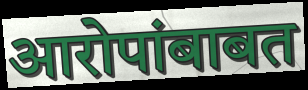
आरोपांबाबत